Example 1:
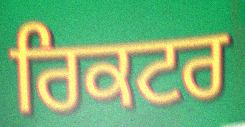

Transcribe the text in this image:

ਰਿਕਟਰ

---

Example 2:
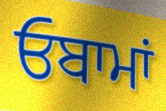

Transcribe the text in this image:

ਓਬਾਮਾਂ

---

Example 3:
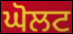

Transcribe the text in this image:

ਘੋਲਟ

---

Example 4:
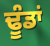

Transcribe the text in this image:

ਢੂੰਡਾਂ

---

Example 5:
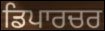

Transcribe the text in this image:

ਡਿਪਾਰਚਰ